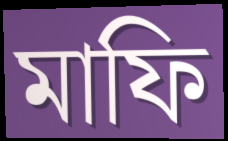
মাফি